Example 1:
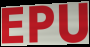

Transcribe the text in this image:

EPU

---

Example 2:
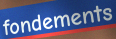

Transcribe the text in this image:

fondements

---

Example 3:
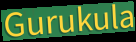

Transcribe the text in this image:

Gurukula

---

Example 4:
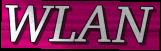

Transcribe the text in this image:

WLAN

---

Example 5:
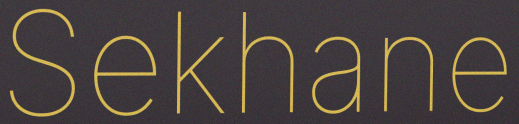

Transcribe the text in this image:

Sekhane